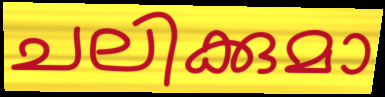
ചലിക്കുമാ